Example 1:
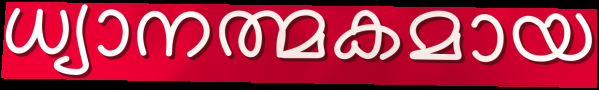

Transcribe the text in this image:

ധ്യാനത്മകമായ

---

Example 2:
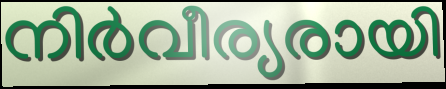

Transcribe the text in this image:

നിർവീര്യരായി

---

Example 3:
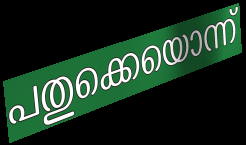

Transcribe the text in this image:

പതുക്കെയൊന്ന്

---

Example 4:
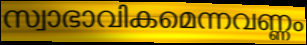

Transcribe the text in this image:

സ്വാഭാവികമെന്നവണ്ണം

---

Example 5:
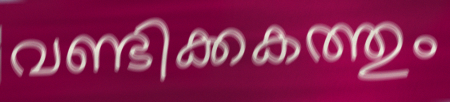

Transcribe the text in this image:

വണ്ടിക്കകത്തും